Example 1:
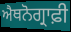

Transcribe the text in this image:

ਐਥਨੋਗ੍ਰਾਫ਼ੀ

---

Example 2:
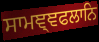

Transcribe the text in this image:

ਸਾਮਞ੍ਞਫਲਾਨਿ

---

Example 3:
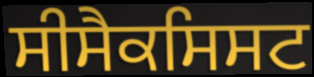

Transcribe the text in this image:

ਸੀਸੈਕਸਿਸਟ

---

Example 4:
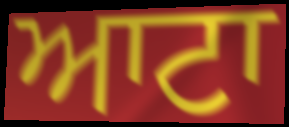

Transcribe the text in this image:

ਆਟਾ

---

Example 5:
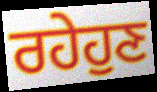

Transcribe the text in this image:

ਰਹੇਹੁਣ